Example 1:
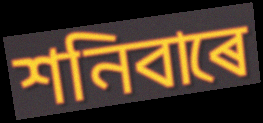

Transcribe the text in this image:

শনিবাৰে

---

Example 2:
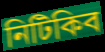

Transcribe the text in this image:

নিটিকিব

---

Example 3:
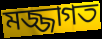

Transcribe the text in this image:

মজ্জাগত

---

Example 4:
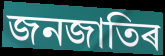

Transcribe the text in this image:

জনজাতিৰ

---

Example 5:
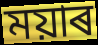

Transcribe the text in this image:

ময়াৰ